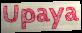
Upaya